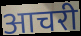
आचरी